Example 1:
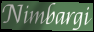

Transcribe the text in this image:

Nimbargi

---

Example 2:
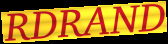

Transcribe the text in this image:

RDRAND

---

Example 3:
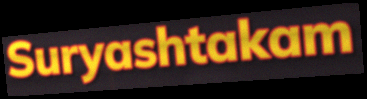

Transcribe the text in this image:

Suryashtakam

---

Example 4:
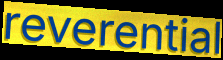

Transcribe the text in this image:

reverential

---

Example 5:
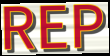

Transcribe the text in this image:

REP